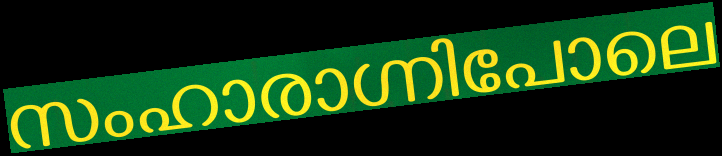
സംഹാരാഗ്നിപോലെ